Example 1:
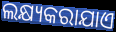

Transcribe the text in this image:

ଲକ୍ଷ୍ୟକରାଯାଏ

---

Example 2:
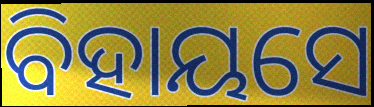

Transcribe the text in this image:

ବିହାୟସେ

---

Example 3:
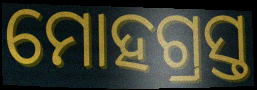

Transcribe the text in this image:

ମୋହଗ୍ରସ୍ତ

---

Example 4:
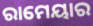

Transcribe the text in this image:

ରାମେୟାର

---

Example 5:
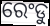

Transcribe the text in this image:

ରେଂଡୁ